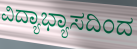
ವಿದ್ಯಾಭ್ಯಾಸದಿಂದ